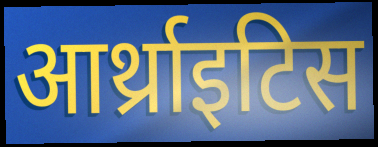
आर्थ्राइटिस